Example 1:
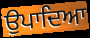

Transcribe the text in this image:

ਉਪਾਦਿਆ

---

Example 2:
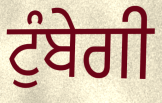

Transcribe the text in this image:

ਟੁੰਬੇਗੀ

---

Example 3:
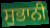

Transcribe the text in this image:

ਸੁਭਾਨੀ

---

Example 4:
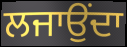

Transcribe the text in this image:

ਲਜਾਉਂਦਾ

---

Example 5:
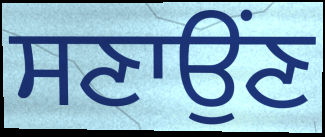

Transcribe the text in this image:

ਸਣਾਉਂਣ